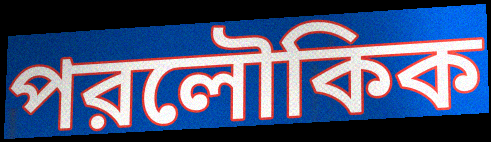
পরলৌকিক